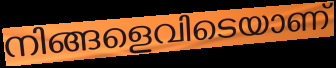
നിങ്ങളെവിടെയാണ്